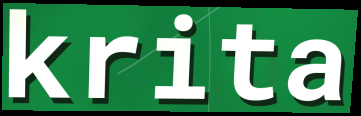
krita